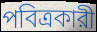
পবিত্রকারী